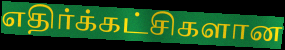
எதிர்க்கட்சிகளான